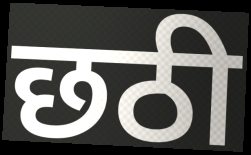
छठी